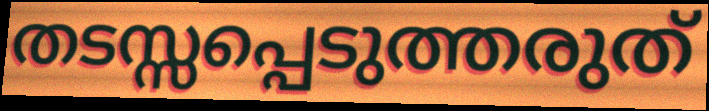
തടസ്സപ്പെടുത്തരുത്